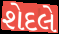
શેદલે